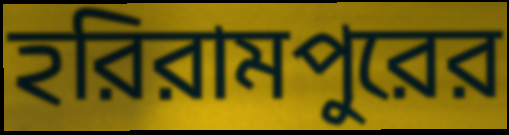
হরিরামপুরের